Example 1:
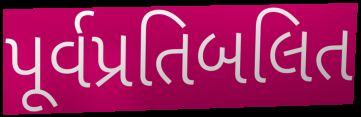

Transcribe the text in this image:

પૂર્વપ્રતિબલિત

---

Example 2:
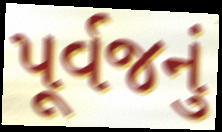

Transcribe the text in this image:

પૂર્વજનું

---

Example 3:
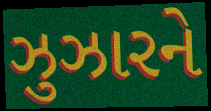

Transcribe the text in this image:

ઝુઝારને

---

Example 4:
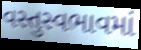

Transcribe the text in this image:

વસ્તુસ્વભાવમાં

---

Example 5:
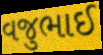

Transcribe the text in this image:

વજુભાઈ